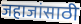
जहाजांसाठी